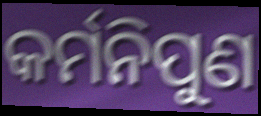
କର୍ମନିପୁଣ